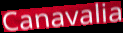
Canavalia